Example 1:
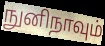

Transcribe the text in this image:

நுனிநாவும்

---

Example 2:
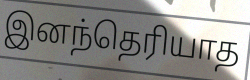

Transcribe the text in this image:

இனந்தெரியாத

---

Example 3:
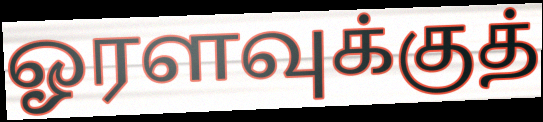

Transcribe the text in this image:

ஓரளவுக்குத்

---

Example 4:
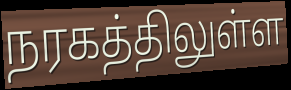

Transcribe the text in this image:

நரகத்திலுள்ள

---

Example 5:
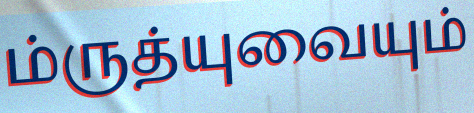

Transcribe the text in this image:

ம்ருத்யுவையும்